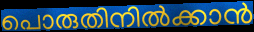
പൊരുതിനിൽക്കാൻ